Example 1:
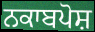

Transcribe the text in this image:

ਨਕਾਬਪੋਸ਼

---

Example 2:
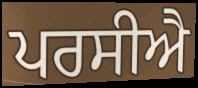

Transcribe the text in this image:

ਪਰਸੀਐ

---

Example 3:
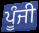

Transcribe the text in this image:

ਪੂੰਜੀ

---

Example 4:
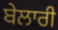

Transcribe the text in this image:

ਬੇਲਾਰੀ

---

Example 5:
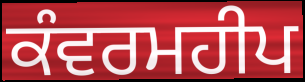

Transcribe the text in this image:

ਕੰਵਰਮਹੀਪ